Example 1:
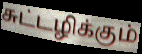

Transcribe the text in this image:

சுட்டழிக்கும்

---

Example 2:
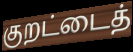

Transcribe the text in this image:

குறட்டைத்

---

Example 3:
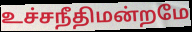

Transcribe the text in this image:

உச்சநீதிமன்றமே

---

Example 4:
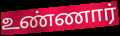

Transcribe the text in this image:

உண்ணார்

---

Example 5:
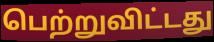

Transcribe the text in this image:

பெற்றுவிட்டது